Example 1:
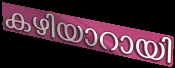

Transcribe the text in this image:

കഴിയാറായി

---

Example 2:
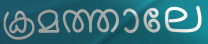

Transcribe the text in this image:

ക്രമത്താലേ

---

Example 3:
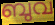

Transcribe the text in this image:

ബുവ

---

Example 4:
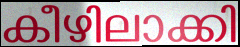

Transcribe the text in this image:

കീഴിലാക്കി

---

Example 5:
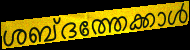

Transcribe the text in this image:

ശബ്ദത്തേക്കാൾ